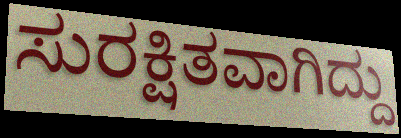
ಸುರಕ್ಷಿತವಾಗಿದ್ದು